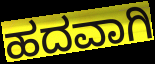
ಹದವಾಗಿ